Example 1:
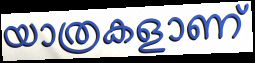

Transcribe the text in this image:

യാത്രകളാണ്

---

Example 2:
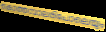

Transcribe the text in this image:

കൊത്തമ്പാലരിപോലെയും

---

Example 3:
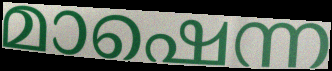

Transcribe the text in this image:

മാഷെന്ന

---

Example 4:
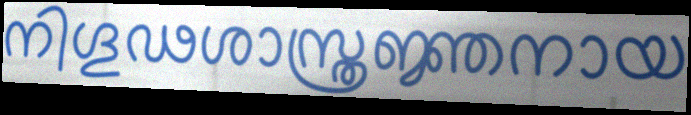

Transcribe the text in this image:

നിഗൂഢശാസ്ത്രജ്ഞനായ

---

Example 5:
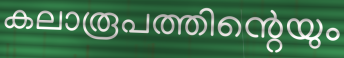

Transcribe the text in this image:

കലാരൂപത്തിന്റെയും